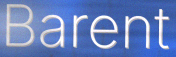
Barent